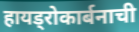
हायड्रोकार्बनाची